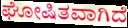
ಘೋಷಿತವಾಗಿದೆ